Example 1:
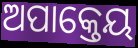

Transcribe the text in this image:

ଅପାକ୍ତେୟ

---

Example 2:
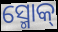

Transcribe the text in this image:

ସ୍ମୋକ୍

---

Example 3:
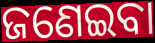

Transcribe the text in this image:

ଜଣେଇବା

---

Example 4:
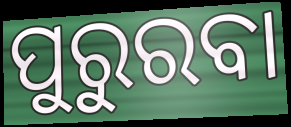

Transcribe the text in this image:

ପୁରୁରବା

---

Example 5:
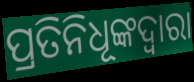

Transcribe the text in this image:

ପ୍ରତିନିଧୂଙ୍କଦ୍ଵାରା